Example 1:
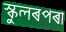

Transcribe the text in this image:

স্কুলৰপৰা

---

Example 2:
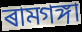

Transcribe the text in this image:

ৰামগঙ্গা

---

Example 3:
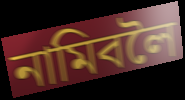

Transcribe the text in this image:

নামিবলৈ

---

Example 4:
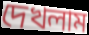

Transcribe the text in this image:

দেখলাম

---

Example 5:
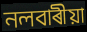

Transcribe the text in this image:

নলবাৰীয়া